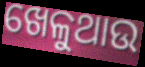
ଖେଳୁଥାଉ